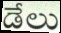
డేలు